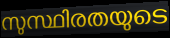
സുസ്ഥിരതയുടെ